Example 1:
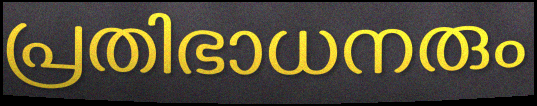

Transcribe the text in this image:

പ്രതിഭാധനരും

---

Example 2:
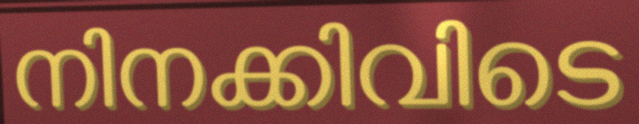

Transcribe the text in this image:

നിനക്കിവിടെ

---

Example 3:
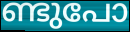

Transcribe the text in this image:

ണ്ടുപോ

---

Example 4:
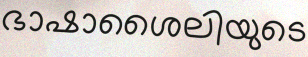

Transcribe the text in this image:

ഭാഷാശൈലിയുടെ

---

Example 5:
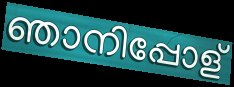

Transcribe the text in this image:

ഞാനിപ്പോള്